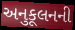
અનુકૂલનની